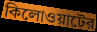
কিলোওয়াটের